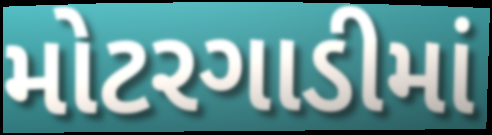
મોટરગાડીમાં